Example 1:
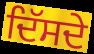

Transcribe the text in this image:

ਦਿੱਸਦੇ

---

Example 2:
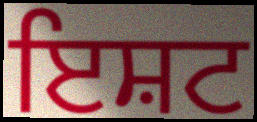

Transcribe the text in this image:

ਇਸ਼ਟ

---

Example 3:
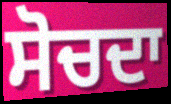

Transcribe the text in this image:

ਸੋਚਦਾ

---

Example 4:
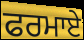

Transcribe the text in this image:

ਫਰਮਾਏ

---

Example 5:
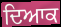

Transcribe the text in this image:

ਦਿਆਕ